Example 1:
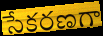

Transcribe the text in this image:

సేకరణగా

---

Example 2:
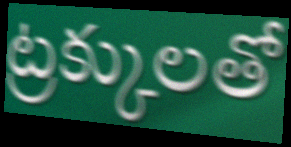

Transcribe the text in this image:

ట్రక్కులతో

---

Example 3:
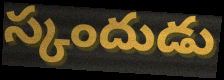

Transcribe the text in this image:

స్కందుడు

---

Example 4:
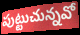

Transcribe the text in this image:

పుట్టుచున్నవో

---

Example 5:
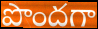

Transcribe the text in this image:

పొందగా